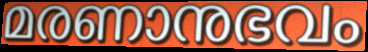
മരണാനുഭവം